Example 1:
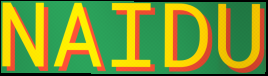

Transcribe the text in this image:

NAIDU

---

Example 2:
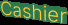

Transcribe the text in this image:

Cashier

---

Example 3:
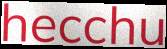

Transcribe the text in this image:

hecchu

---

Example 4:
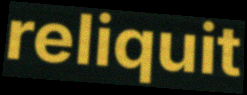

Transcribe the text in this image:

reliquit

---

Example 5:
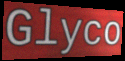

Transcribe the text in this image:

Glyco